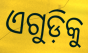
ଏଗୁଡ଼ିକୁ